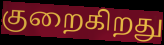
குறைகிறது